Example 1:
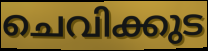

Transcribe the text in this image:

ചെവിക്കുട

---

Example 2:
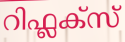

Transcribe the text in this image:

റിഫ്ലക്സ്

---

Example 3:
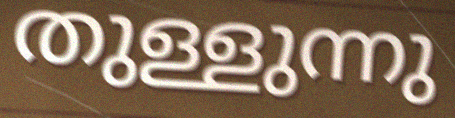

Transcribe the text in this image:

തുള്ളുന്നു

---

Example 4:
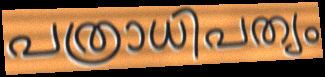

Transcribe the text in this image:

പത്രാധിപത്യം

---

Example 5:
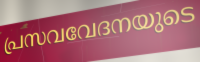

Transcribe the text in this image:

പ്രസവവേദനയുടെ